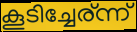
കൂടിച്ചേര്ന്ന്